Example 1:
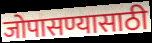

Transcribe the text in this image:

जोपासण्यासाठी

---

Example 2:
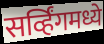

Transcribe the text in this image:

सर्व्हिंगमध्ये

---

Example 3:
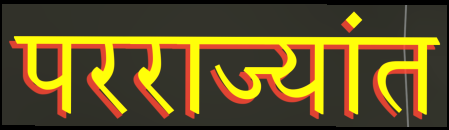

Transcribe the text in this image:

परराज्यांत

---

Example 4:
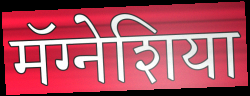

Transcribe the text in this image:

मॅग्‍नेशिया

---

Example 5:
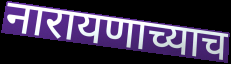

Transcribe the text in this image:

नारायणाच्याच